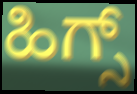
ಹಿಗ್ಸ್